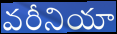
వరీనియా